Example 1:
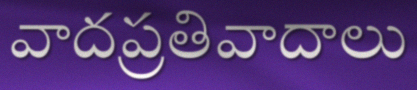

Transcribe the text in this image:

వాదప్రతివాదాలు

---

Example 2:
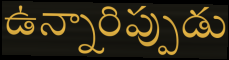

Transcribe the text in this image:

ఉన్నారిప్పుడు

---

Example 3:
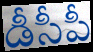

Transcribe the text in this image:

డీసీపీ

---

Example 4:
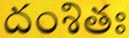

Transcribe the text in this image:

దంశితః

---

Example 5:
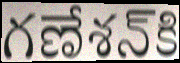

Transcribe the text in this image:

గణేశన్‍కి